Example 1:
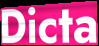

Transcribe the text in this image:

Dicta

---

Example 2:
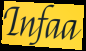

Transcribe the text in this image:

Infaa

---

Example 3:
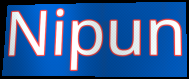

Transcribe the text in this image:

Nipun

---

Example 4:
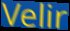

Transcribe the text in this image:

Velir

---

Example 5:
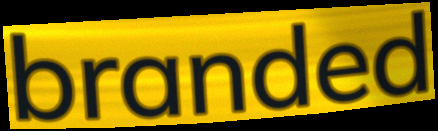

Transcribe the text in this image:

branded